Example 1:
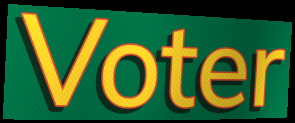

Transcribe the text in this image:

Voter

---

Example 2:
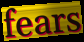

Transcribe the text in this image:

fears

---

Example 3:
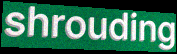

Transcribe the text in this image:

shrouding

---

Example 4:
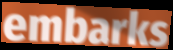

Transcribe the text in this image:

embarks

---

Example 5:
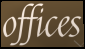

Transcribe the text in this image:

offices